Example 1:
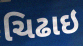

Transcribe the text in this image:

ચિઢાઇ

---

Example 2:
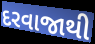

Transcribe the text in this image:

દરવાજાથી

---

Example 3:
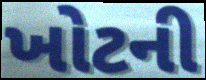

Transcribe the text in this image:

ખોટની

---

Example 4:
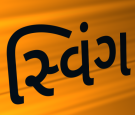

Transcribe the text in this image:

સ્વિંગ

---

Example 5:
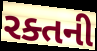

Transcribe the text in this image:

રક્તની